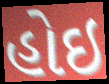
હોઇ